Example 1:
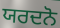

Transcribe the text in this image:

ਯਰਦਨੋ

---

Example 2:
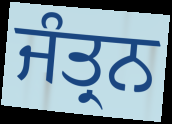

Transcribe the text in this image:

ਜੰਤ੍ਰਨ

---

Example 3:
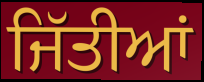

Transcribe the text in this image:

ਜਿੱਤੀਆਂ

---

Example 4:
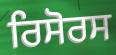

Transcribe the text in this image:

ਰਿਸੋਰਸ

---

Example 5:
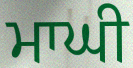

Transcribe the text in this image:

ਮਾਘੀ